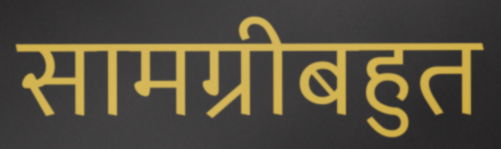
सामग्रीबहुत